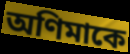
অণিমাকে